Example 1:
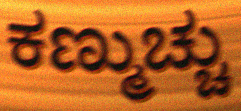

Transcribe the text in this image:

ಕಣ್ಮುಚ್ಚು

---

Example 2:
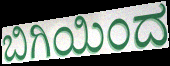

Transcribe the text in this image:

ಬಿಗಿಯಿಂದ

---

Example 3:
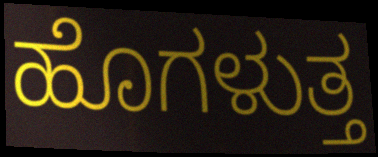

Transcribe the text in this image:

ಹೊಗಳುತ್ತ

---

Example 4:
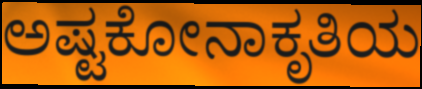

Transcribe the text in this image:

ಅಷ್ಟಕೋನಾಕೃತಿಯ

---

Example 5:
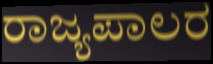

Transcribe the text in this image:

ರಾಜ್ಯಪಾಲರ